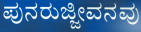
ಪುನರುಜ್ಜೀವನವು